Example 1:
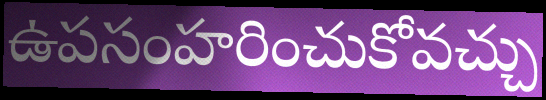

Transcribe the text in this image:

ఉపసంహరించుకోవచ్చు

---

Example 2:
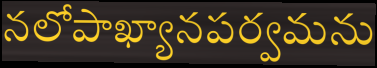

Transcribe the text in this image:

నలోపాఖ్యానపర్వమను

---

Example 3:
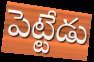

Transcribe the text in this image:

పెట్టేడు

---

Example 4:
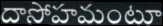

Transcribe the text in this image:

దాసోహమంటూ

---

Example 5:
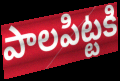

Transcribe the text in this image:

పాలపిట్టకి